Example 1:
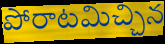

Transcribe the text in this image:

పోరాటమిచ్చిన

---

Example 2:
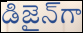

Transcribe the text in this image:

డిజైన్‌గా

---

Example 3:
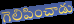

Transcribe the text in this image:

గెలిపించాడు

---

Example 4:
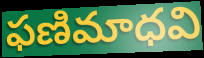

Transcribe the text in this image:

ఫణిమాధవి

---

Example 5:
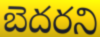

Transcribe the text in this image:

బెదరని